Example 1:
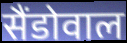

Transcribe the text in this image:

सैंडोवाल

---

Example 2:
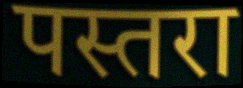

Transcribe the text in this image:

पस्तरा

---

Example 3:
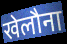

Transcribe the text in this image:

खेलौना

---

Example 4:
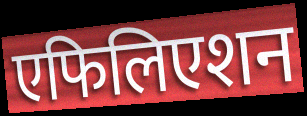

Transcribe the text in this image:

एफिलिएशन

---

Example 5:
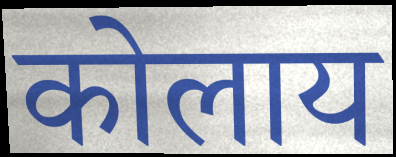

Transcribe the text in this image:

कोलाय